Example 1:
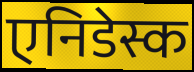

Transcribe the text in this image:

एनिडेस्क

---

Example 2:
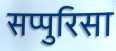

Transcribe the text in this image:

सप्पुरिसा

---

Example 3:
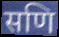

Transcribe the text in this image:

सणि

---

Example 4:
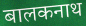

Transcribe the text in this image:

बालकनाथ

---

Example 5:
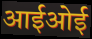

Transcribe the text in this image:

आईओई